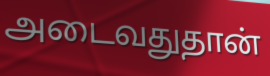
அடைவதுதான்